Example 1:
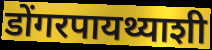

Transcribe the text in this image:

डोंगरपायथ्याशी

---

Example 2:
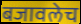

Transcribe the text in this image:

बजावलेच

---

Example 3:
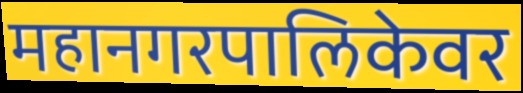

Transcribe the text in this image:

महानगरपालिकेवर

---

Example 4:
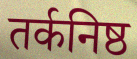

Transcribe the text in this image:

तर्कनिष्ठ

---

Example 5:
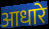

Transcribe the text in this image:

आधारे